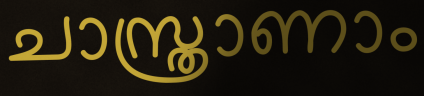
ചാസ്ത്രാണാം